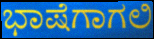
ಭಾಷೆಗಾಗಲಿ